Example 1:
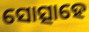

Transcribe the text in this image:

ସୋତ୍ସାହେ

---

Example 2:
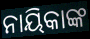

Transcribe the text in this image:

ନାୟିକାଙ୍କ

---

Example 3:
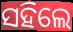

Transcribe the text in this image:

ସହିଲେ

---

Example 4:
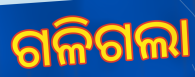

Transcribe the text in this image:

ଗଳିଗଲା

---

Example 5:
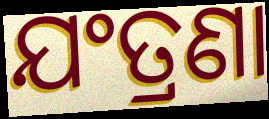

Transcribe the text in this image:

ଯଂତ୍ରଣା